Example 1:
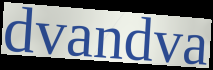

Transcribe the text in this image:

dvandva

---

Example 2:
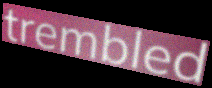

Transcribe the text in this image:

trembled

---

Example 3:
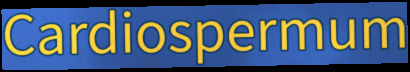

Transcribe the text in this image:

Cardiospermum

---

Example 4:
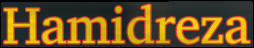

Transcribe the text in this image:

Hamidreza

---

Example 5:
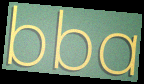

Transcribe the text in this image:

bba